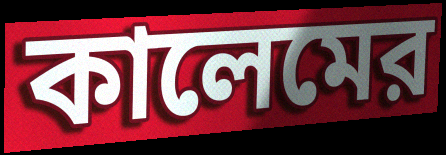
কালেমের